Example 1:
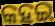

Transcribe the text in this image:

କହଇ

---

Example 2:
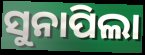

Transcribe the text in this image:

ସୁନାପିଲା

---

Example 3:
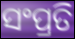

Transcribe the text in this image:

ସଂପ୍ରତି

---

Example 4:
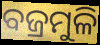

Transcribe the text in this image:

ବଜ୍ରମୁଳି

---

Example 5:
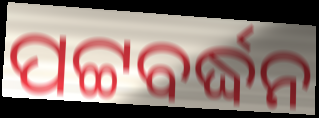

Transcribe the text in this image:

ପଟ୍ଟବର୍ଦ୍ଧନ